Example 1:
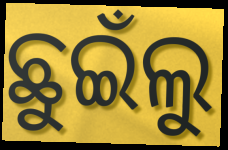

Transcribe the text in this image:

ଛୁଇଁଲୁ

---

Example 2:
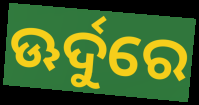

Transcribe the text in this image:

ଊର୍ଦୁରେ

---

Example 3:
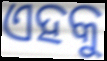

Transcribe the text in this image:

ଏହକୁ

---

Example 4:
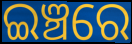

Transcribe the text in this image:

ଇଞ୍ଚରେ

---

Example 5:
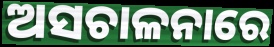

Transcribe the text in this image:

ଅସଚାଳନାରେ